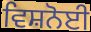
ਵਿਸ਼ਨੋਈ